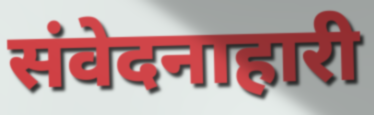
संवेदनाहारी